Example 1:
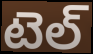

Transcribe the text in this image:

టెల్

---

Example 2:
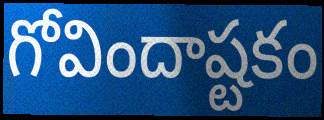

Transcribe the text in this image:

గోవిందాష్టకం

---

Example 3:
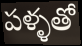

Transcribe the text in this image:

పళ్ళతో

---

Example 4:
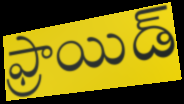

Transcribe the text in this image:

ఫ్రాయిడ్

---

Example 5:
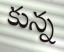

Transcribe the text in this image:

కున్న